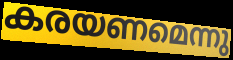
കരയണമെന്നു